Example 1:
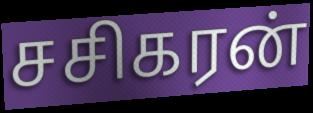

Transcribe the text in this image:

சசிகரன்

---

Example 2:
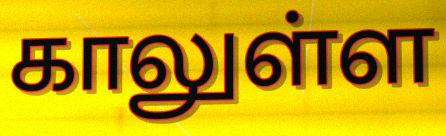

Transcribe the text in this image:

காலுள்ள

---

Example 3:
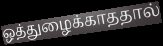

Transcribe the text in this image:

ஒத்துழைக்காததால்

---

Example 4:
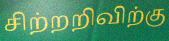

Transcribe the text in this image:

சிற்றறிவிற்கு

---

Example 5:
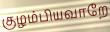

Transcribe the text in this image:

குழம்பியவாறே